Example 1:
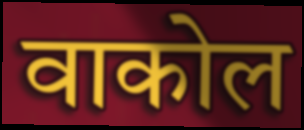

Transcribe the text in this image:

वाकोल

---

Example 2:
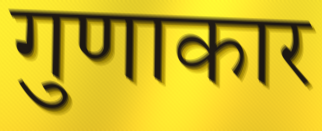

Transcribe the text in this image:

गुणाकार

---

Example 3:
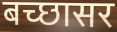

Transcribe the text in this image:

बच्छासर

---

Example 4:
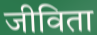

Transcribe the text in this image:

जीविता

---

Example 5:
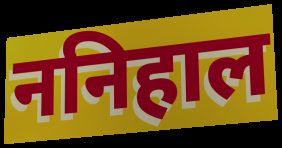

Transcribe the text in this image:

ननिहाल